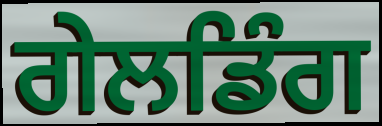
ਗੇਲਡਿੰਗ